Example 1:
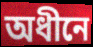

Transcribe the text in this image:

অধীনে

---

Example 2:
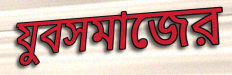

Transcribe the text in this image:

যুবসমাজের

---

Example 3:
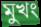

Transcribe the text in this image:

মুখং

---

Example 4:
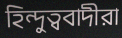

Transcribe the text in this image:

হিন্দুত্ববাদীরা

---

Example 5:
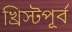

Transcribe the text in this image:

খ্রিস্টপূর্ব